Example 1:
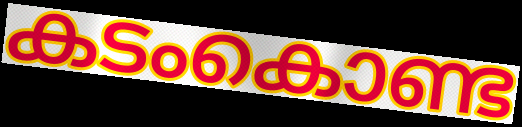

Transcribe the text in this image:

കടംകൊണ്ട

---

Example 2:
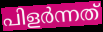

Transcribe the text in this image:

പിളർന്നത്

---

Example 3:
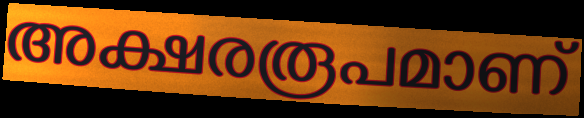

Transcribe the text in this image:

അക്ഷരരൂപമാണ്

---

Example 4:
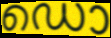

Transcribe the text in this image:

ഡൊ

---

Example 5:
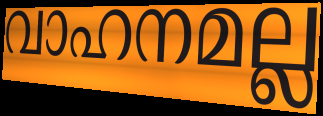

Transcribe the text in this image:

വാഹനമല്ല